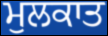
ਮੁਲਕਾਤ